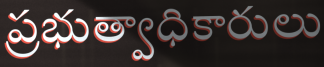
ప్రభుత్వాధికారులు